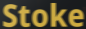
Stoke